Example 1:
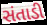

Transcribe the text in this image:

સંતાડી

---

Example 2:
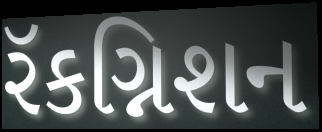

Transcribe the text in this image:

રૅકગ્નિશન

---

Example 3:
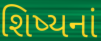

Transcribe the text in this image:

શિષ્યનાં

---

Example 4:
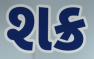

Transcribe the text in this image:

શક્ર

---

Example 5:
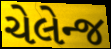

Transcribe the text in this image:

ચેલેન્જ